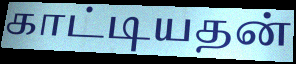
காட்டியதன்